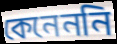
কেনেননি